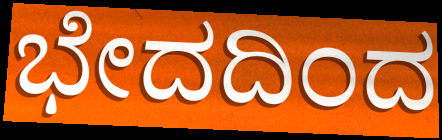
ಭೇದದಿಂದ